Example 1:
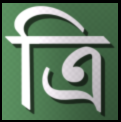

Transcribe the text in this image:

ত্রি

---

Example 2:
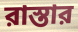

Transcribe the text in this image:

রাস্তার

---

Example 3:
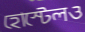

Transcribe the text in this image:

হোস্টেলও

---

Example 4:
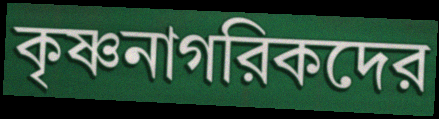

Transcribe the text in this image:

কৃষ্ণনাগরিকদের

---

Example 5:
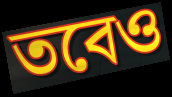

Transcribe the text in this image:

তবেও